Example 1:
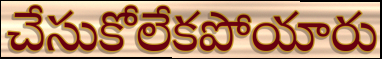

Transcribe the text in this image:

చేసుకోలేకపోయారు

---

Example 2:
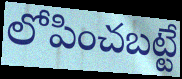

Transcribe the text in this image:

లోపించబట్టే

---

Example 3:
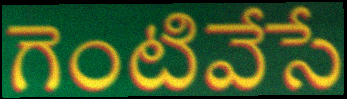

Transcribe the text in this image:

గెంటివేసే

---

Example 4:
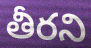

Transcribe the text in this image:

తీరని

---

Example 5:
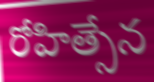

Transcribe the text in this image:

రోహిత్సేన